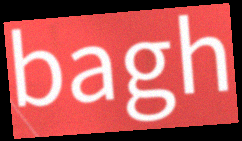
bagh